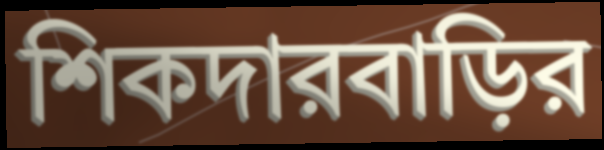
শিকদারবাড়ির